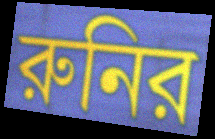
রুনির